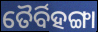
ତୈର୍ବିହଙ୍ଗା